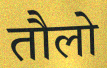
तौलो